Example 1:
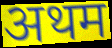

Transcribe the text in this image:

अथम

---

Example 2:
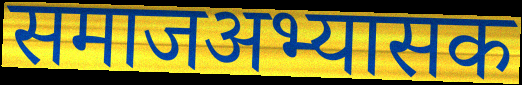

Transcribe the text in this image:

समाजअभ्यासक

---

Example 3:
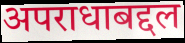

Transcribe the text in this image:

अपराधाबद्दल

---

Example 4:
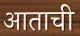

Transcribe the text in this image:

आताची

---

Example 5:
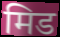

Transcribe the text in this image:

मिड